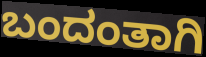
ಬಂದಂತಾಗಿ